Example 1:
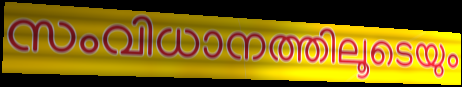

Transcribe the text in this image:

സംവിധാനത്തിലൂടെയും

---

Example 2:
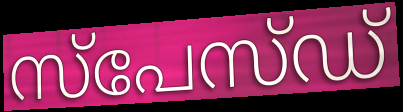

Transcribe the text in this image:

സ്പേസ്ഡ്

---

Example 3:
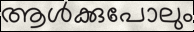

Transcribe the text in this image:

ആൾക്കുപോലും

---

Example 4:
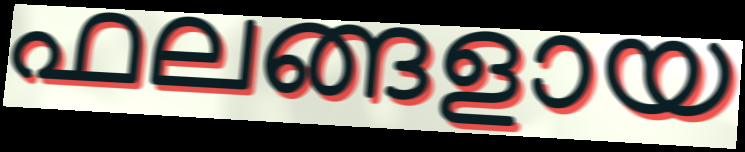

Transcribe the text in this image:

ഫലങ്ങളായ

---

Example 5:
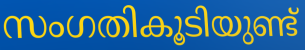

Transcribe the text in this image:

സംഗതികൂടിയുണ്ട്